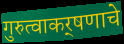
गुरुत्वाकर्षणाचे